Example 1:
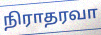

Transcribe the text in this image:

நிராதரவா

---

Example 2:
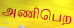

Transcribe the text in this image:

அணிபெற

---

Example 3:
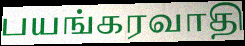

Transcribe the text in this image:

பயங்கரவாதி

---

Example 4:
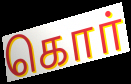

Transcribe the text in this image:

கொர்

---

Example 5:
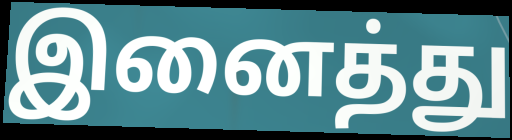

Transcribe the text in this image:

இனைத்து